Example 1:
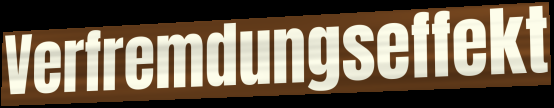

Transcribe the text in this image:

Verfremdungseffekt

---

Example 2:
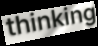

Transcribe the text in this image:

thinking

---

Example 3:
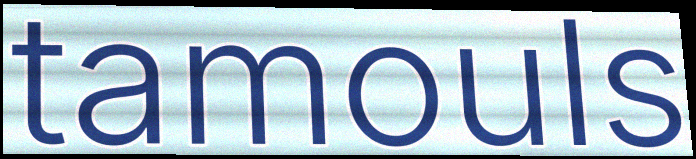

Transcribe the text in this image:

tamouls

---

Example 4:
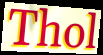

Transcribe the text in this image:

Thol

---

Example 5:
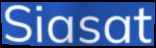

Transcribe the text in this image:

Siasat